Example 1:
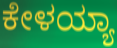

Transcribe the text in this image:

ಕೇಳಯ್ಯಾ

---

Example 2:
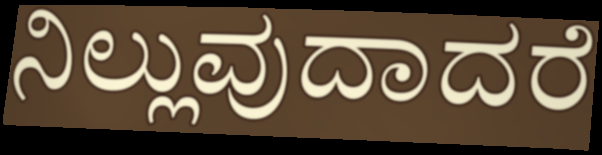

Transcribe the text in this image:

ನಿಲ್ಲುವುದಾದರೆ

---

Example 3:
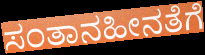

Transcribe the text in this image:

ಸಂತಾನಹೀನತೆಗೆ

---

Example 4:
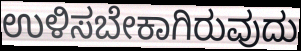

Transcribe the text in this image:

ಉಳಿಸಬೇಕಾಗಿರುವುದು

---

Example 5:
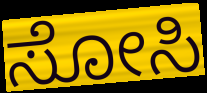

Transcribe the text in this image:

ಸೋಸಿ